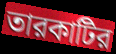
তারকাটির